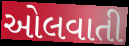
ઓલવાતી